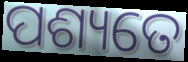
ପଶ୍ୟତେ